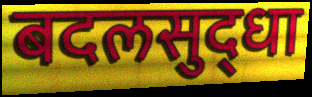
बदलसुद्धा